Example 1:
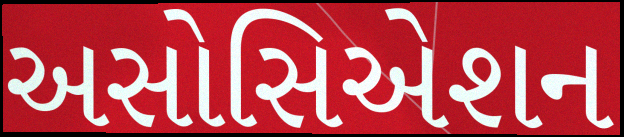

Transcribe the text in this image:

અસોસિએશન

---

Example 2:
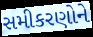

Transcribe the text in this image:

સમીકરણોને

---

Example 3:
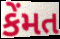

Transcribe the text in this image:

કેંમત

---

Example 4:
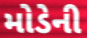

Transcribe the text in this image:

મોડેની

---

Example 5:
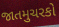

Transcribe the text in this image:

જાતમુચરકો